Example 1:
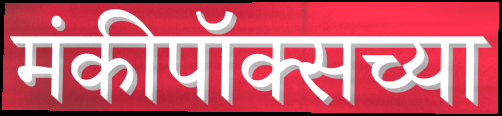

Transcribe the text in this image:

मंकीपॉक्सच्या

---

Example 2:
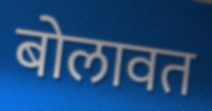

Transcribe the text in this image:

बोलावत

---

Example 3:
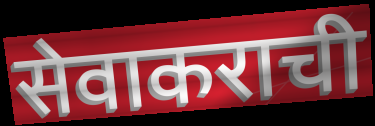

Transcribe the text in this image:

सेवाकराची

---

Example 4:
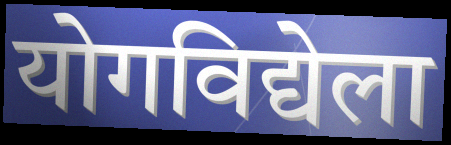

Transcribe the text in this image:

योगविद्येला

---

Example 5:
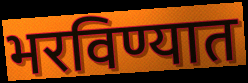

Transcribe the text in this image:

भरविण्यात